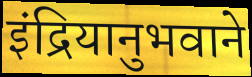
इंद्रियानुभवाने